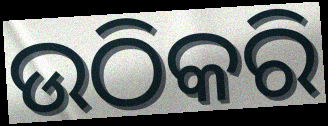
ଉଠିକରି